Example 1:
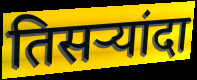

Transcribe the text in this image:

तिसऱ्यांदा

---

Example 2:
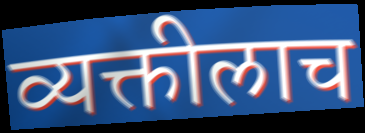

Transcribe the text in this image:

व्यक्तीलाच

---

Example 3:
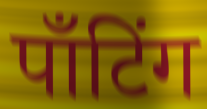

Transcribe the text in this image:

पाँटिंग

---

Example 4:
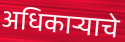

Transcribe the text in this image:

अधिकाऱ्याचे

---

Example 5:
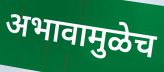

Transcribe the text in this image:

अभावामुळेच